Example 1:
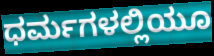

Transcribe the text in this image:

ಧರ್ಮಗಳಲ್ಲಿಯೂ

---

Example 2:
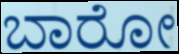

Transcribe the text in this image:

ಬಾರೋ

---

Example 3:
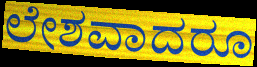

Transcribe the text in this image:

ಲೇಶವಾದರೂ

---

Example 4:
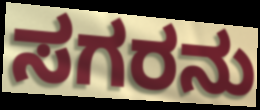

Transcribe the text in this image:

ಸಗರನು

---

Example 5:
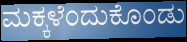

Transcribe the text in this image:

ಮಕ್ಕಳೆಂದುಕೊಂಡು